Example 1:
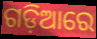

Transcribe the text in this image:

ଗଡ଼ିଆରେ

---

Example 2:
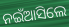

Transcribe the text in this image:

ନଇଁଆସିଲେ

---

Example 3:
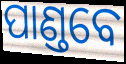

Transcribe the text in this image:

ପାଣ୍ଡବେ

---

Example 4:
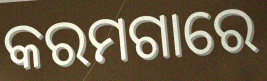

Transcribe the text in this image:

କରମଗାରେ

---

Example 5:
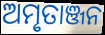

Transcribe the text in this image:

ଅମୃତାଞ୍ଜନ